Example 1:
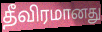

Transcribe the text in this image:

தீவிரமானது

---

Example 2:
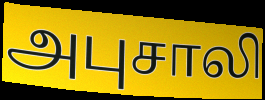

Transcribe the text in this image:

அபுசாலி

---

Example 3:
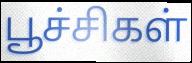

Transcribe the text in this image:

பூச்சிகள்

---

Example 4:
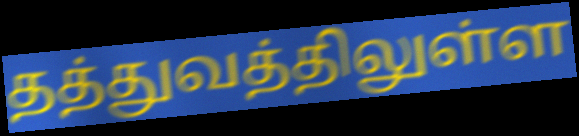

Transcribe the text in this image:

தத்துவத்திலுள்ள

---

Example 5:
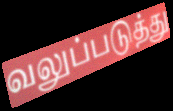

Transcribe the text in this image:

வலுப்படுத்து